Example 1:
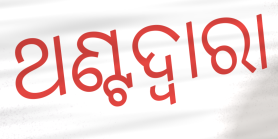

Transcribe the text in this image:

ଥଣ୍ଟଦ୍ୱାରା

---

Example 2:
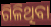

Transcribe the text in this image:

ଗିଳିଥିବା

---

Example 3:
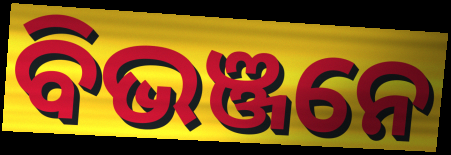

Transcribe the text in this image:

ବିଭଞ୍ଜନେ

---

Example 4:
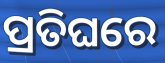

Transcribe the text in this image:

ପ୍ରତିଘରେ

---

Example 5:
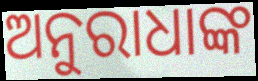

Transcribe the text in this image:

ଅନୁରାଧାଙ୍କ